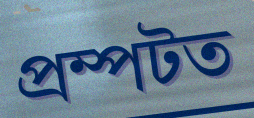
প্ৰম্পটত